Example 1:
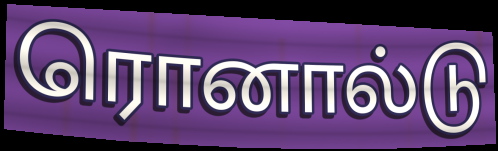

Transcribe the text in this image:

ரொனால்டு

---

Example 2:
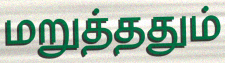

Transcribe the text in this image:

மறுத்ததும்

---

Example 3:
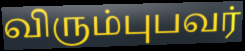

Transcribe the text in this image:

விரும்புபவர்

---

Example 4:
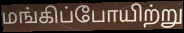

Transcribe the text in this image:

மங்கிப்போயிற்று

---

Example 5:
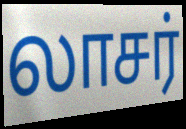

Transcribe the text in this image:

லாசர்